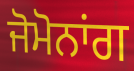
ਜੋਮੋਨਾਂਗ